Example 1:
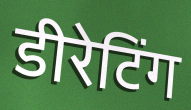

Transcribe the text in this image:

डीरेटिंग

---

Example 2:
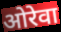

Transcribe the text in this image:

ओरेवा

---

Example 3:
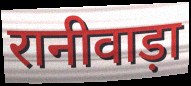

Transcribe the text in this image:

रानीवाड़ा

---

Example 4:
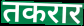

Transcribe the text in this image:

तकरार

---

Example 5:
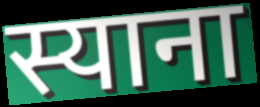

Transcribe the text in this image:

स्याना